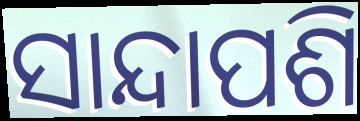
ସାନ୍ଦାପଶି